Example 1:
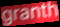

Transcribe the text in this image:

granth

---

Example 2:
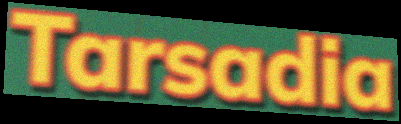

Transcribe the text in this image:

Tarsadia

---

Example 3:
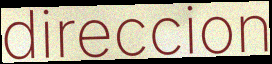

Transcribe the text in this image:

direccion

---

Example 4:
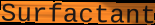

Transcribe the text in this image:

Surfactant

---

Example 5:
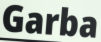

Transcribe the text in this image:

Garba